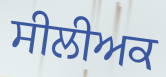
ਸੀਲੀਅਕ